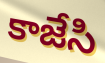
కాజేసి